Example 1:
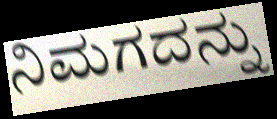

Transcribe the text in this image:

ನಿಮಗದನ್ನು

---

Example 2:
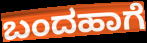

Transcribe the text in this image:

ಬಂದಹಾಗೆ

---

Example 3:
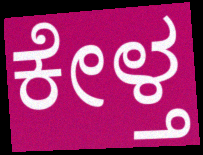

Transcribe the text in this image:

ಕೇಳ್ತ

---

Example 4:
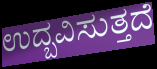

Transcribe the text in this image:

ಉದ್ಬವಿಸುತ್ತದೆ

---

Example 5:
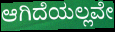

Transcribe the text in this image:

ಆಗಿದೆಯಲ್ಲವೇ